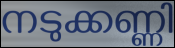
നടുക്കണ്ണി